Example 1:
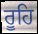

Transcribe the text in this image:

ਰੂਹਿ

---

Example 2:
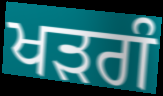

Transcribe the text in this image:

ਖੜਗੰ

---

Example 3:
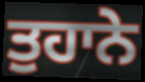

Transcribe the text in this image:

ਤੁਹਾਨੇ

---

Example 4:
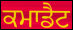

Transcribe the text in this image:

ਕਮਾਡੈਟ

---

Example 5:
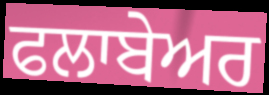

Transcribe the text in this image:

ਫਲਾਬੇਅਰ